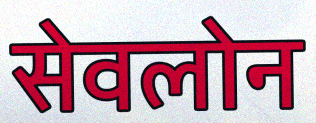
सेवलोन